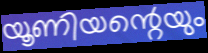
യൂണിയന്റെയും